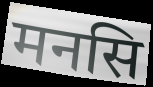
मनसि